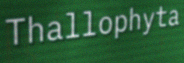
Thallophyta